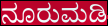
ನೂರುಮಡಿ